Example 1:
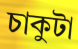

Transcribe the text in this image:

চাকুটা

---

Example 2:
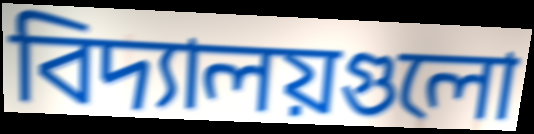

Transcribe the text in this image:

বিদ্যালয়গুলো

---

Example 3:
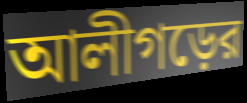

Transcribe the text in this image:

আলীগড়ের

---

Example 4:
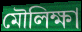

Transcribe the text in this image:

মৌলিক্ষা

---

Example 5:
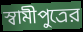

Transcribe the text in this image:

স্বামীপুত্রের